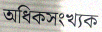
অধিকসংখ্যক